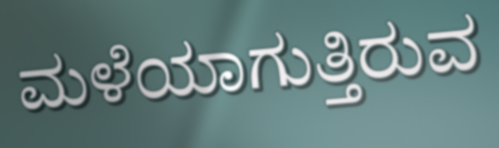
ಮಳೆಯಾಗುತ್ತಿರುವ